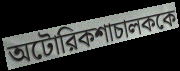
অটোরিকশাচালককে